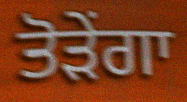
ਤੋੜੇਂਗਾ